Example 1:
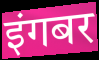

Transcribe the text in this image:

इंगबर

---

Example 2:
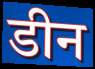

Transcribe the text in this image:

डीन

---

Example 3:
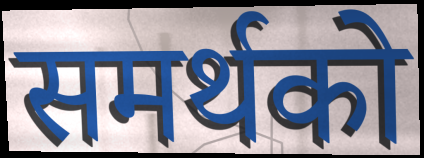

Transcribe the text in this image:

समर्थको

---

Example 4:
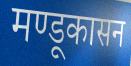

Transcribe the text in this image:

मण्डूकासन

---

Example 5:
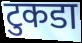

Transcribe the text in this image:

टुकडा